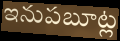
ఇనుపబూట్ల